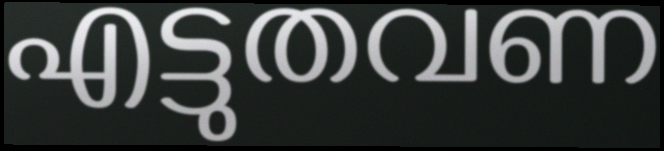
എട്ടുതവണ